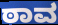
ಠಾವ